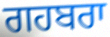
ਗਹਬਰਾ